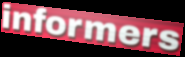
informers